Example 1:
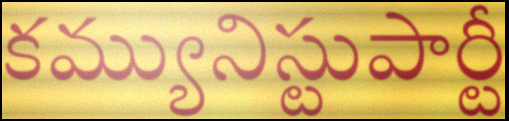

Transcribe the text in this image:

కమ్యునిస్టుపార్టీ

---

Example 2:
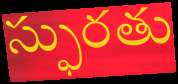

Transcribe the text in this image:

స్ఫురతు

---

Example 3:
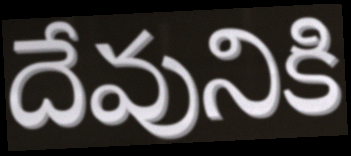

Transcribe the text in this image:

దేవునికి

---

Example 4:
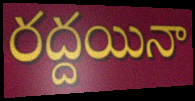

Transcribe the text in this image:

రద్దయినా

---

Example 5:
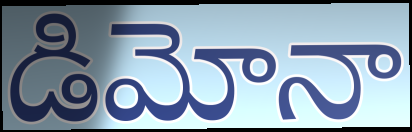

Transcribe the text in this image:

డిమోనా